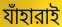
যাঁহারাই